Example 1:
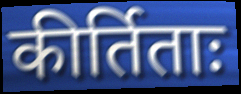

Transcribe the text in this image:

कीर्तिताः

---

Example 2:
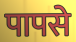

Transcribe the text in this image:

पापसे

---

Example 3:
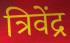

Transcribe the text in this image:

त्रिवेंद्र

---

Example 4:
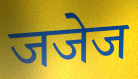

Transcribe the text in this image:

जजेज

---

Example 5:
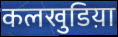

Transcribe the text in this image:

कलखुडिय़ा